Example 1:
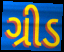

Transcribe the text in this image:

ગ્રીડ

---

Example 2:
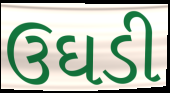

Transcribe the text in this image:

ઉઘડી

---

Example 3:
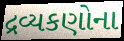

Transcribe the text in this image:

દ્રવ્યકણોના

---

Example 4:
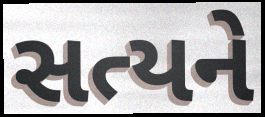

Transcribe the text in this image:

સત્યને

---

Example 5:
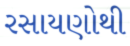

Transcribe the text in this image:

રસાયણોથી